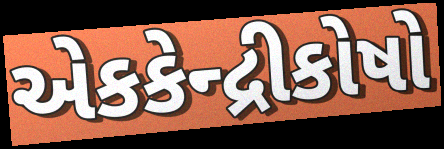
એકકેન્દ્રીકોષો